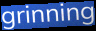
grinning